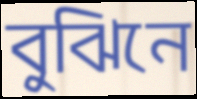
বুঝিনে